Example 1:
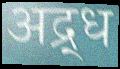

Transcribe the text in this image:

अद्र्ध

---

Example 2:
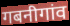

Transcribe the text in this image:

गबनीगांव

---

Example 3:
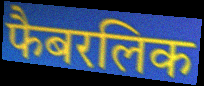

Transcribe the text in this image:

फैबरलिक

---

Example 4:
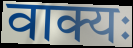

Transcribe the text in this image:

वाक्यः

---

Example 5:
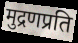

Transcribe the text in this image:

मुद्रणप्रति